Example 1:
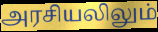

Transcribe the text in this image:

அரசியலிலும்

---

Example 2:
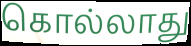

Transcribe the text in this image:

கொல்லாது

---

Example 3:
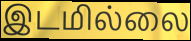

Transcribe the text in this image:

இடமில்லை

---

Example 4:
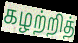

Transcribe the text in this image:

கழற்றித்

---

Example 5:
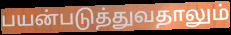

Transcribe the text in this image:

பயன்படுத்துவதாலும்